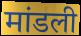
मांडली